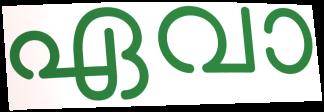
ഏവാ